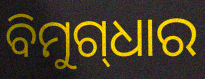
ବିମୁଗ୍‌ଧାର